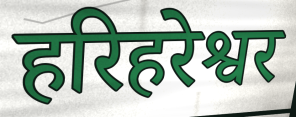
हरिहरेश्वर